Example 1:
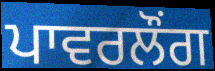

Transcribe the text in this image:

ਪਾਵਰਲੌਂਗ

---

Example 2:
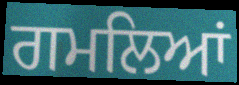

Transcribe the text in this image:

ਗਮਲਿਆਂ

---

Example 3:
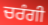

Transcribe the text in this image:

ਚਰੰਗੀ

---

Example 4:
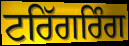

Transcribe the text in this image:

ਟਰਿੱਗਰਿੰਗ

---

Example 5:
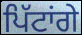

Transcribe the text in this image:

ਪਿੱਟਾਂਗੇ